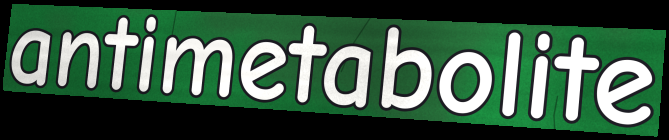
antimetabolite